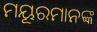
ମୟୂରମାନଙ୍କ